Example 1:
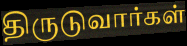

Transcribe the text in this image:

திருடுவார்கள்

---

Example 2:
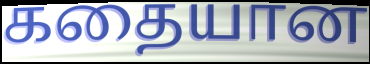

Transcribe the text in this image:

கதையான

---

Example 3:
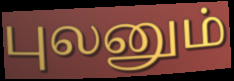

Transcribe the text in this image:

புலனும்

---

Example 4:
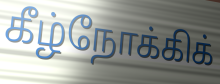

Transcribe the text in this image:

கீழ்நோக்கிக்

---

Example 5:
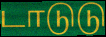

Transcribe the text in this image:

டாடுடு